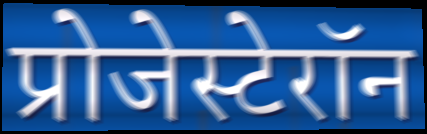
प्रोजेस्टेरॉन